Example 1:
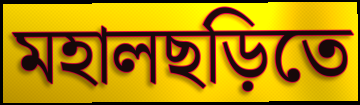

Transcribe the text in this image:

মহালছড়িতে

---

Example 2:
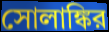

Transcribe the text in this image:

সোলাঙ্কির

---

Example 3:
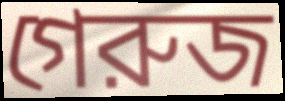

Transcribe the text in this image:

গেরুজ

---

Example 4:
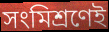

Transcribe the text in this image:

সংমিশ্রণেই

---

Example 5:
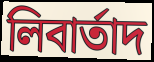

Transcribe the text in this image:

লিবার্তাদ